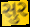
સુર